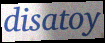
disatoy